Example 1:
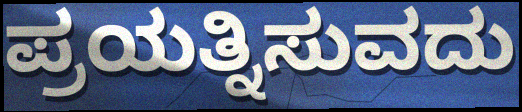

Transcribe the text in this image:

ಪ್ರಯತ್ನಿಸುವದು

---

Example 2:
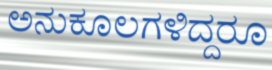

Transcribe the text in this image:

ಅನುಕೂಲಗಳಿದ್ದರೂ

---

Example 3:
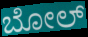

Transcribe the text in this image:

ಬೋಲ್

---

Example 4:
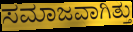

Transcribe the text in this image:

ಸಮಾಜವಾಗಿತ್ತು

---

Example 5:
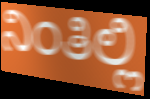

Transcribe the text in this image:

ನಿಂತಿಲ್ಲಿ